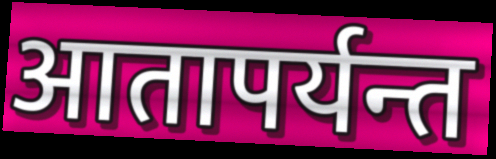
आतापर्यन्त